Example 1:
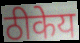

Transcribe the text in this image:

ठीकेय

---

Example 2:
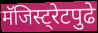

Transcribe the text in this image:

मॅजिस्ट्रेटपुढे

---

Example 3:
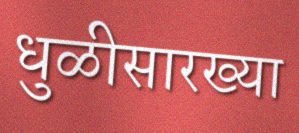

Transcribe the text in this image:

धुळीसारख्या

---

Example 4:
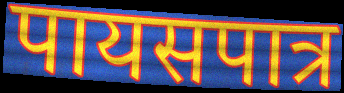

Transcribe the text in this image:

पायसपात्र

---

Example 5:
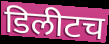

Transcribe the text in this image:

डिलीटच